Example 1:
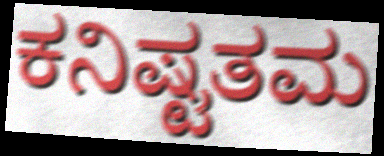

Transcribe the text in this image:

ಕನಿಷ್ಟತಮ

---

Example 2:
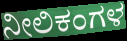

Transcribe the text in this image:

ನೀಲಿಕಂಗಳ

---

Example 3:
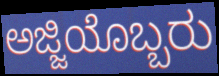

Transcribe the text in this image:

ಅಜ್ಜಿಯೊಬ್ಬರು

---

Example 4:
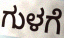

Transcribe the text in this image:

ಗುಳಗೆ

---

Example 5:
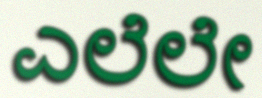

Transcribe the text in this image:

ಎಲೆಲೇ